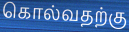
கொல்வதற்கு